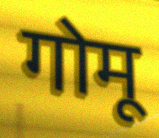
गोमू